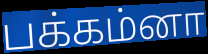
பக்கம்னா